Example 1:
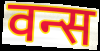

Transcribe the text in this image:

वन्स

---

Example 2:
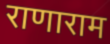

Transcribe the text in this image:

राणाराम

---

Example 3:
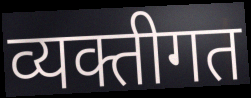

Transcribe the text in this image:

व्यक्तीगत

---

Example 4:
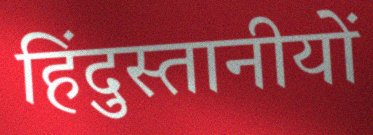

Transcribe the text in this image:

हिंदुस्तानीयों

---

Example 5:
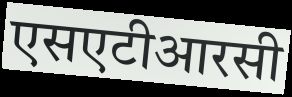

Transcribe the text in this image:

एसएटीआरसी